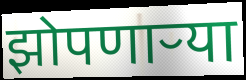
झोपणाऱ्या